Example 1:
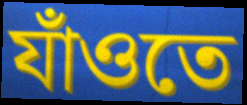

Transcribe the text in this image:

যাঁওতে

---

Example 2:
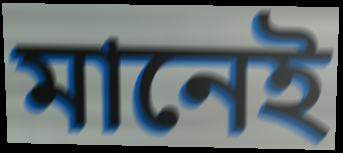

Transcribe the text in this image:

মানেই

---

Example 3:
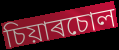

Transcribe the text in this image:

চিয়াৰচোল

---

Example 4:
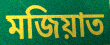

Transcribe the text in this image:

মজিয়াত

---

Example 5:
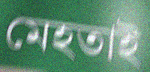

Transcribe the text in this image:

মেহতাই